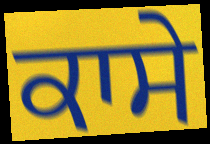
ਕਾਸੇ